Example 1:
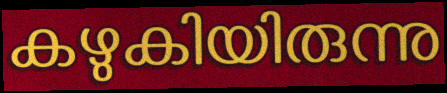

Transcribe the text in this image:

കഴുകിയിരുന്നു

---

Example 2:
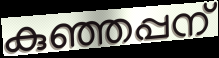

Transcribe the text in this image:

കുഞ്ഞപ്പന്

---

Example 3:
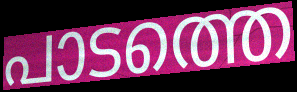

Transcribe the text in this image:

പാടത്തെ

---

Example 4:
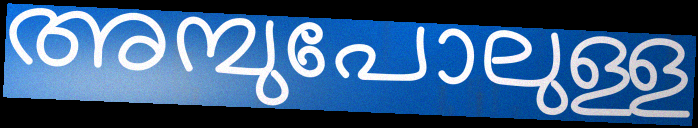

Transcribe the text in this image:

അമ്പുപോലുള്ള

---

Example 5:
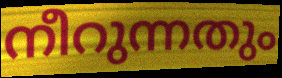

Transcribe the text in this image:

നീറുന്നതും